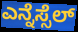
ಎನ್ನೆಸ್ಸೆಲ್